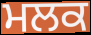
ਮਲਕ